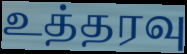
உத்தரவு